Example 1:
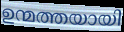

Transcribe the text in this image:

ഉന്മത്തയായി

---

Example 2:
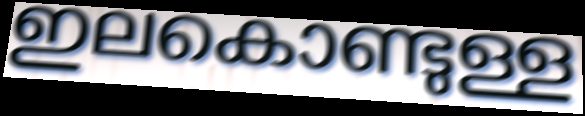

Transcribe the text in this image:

ഇലകൊണ്ടുള്ള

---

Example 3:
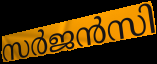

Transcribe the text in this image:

സർജൻസി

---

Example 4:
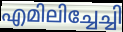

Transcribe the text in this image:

എമിലിച്ചേച്ചി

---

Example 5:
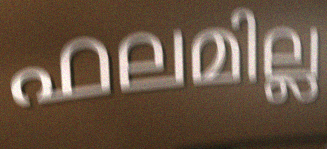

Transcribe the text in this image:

ഫലമില്ല